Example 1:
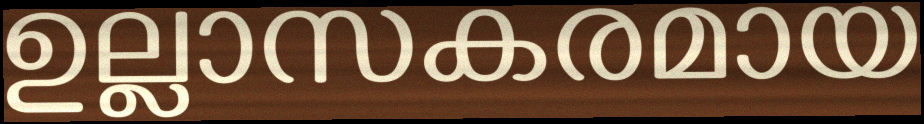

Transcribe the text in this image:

ഉല്ലാസകരമായ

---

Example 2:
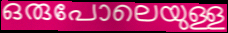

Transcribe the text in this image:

ഒരുപോലെയുള്ള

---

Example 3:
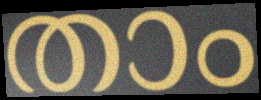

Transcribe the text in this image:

താം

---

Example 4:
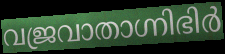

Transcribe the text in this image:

വജ്രവാതാഗ്നിഭിർ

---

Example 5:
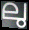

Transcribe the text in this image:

ലു